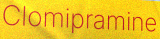
Clomipramine